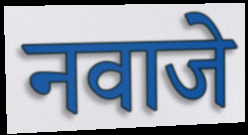
नवाजे